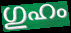
ഗുഹം